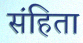
संहिता